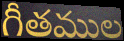
గీతముల